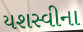
યશસ્વીના